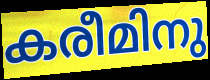
കരീമിനു